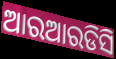
ଆରଆରଡିସି